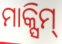
ମାକ୍ସିମ୍